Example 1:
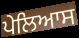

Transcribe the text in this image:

ਪੇਲਿਆਸ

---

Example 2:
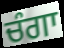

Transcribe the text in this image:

ਚੰਗਾ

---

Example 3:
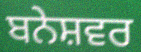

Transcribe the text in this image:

ਬਨੇਸ਼ਵਰ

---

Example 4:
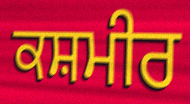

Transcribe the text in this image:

ਕਸ਼ਮੀਰ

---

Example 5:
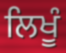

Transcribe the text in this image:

ਲਿਖੂੰ